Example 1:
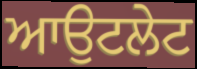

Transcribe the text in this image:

ਆਉਟਲੇਟ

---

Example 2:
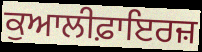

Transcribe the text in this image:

ਕੁਆਲੀਫ਼ਾਇਰਜ਼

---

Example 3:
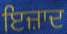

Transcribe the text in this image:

ਇਜ਼ਾਦ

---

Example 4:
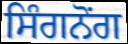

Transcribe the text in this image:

ਸਿੰਗਨੋਂਗ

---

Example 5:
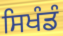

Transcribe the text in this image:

ਸਿਖੰਡੰ